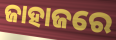
ଜାହାଜରେ